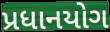
પ્રધાનયોગ